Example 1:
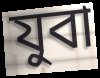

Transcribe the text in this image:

যুবা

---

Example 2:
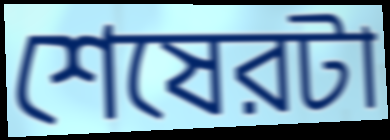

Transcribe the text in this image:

শেষেরটা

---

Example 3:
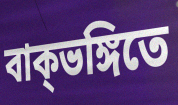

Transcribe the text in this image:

বাক্ভঙ্গিতে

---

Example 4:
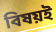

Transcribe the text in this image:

বিষয়ই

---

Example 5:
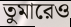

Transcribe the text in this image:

তুমারেও